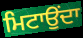
ਮਿਟਾਉਂਦਾ